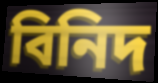
বিনিদ